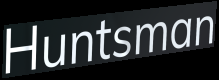
Huntsman